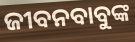
ଜୀବନବାବୁଙ୍କ